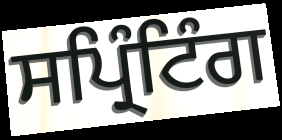
ਸਪ੍ਰਿੰਟਿੰਗ